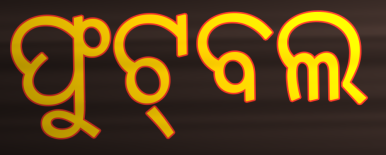
ଫୁଟ୍‌ବଲ